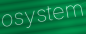
osystem